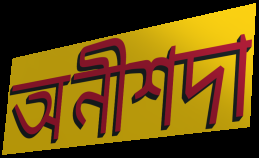
অনীশদা